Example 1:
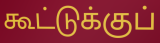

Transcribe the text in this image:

கூட்டுக்குப்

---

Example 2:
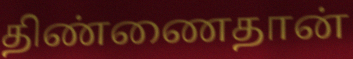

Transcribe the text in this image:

திண்ணைதான்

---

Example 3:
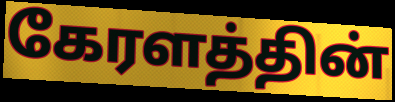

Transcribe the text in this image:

கேரளத்தின்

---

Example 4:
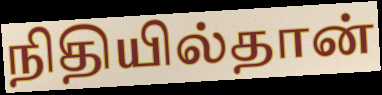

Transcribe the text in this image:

நிதியில்தான்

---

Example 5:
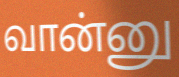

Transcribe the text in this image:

வான்னு